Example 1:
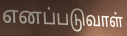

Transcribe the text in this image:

எனப்படுவாள்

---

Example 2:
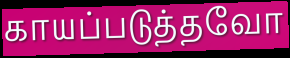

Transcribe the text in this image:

காயப்படுத்தவோ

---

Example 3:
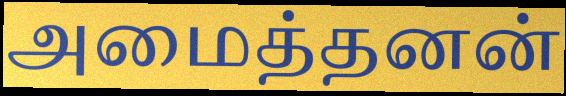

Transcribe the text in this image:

அமைத்தனன்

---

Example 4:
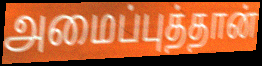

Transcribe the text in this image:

அமைப்புத்தான்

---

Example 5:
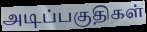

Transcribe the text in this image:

அடிப்பகுதிகள்